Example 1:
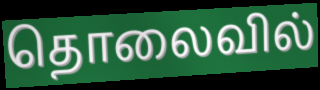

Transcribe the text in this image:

தொலைவில்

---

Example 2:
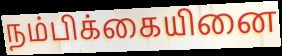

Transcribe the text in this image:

நம்பிக்கையினை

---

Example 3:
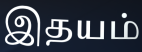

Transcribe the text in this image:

இதயம்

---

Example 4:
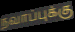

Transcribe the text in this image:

நவாப்புக்கு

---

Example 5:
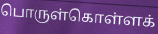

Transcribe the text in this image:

பொருள்கொள்ளக்